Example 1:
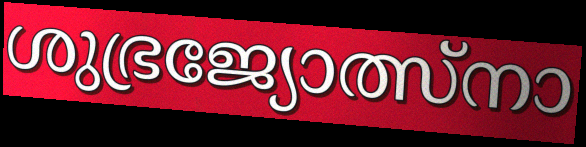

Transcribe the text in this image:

ശുഭ്രജ്യോത്സ്നാ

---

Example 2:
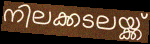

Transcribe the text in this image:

നിലക്കടലയ്ക്ക്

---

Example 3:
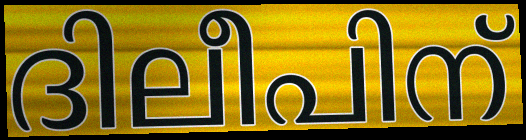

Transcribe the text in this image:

ദിലീപിന്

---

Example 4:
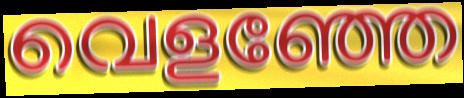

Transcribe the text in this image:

വെളഞ്ഞേ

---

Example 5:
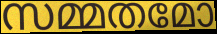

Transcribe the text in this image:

സമ്മതമോ